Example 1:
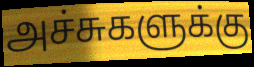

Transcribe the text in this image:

அச்சுகளுக்கு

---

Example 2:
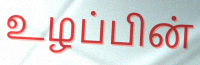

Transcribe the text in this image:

உழப்பின்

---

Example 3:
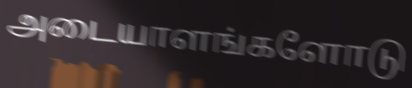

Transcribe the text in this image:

அடையாளங்களோடு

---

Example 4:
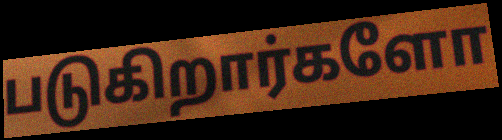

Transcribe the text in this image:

படுகிறார்களோ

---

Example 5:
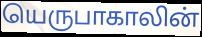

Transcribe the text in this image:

யெருபாகாலின்